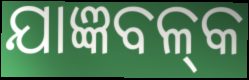
ଯାଜ୍ଞବଳ୍‌କ